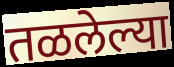
तळलेल्या